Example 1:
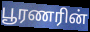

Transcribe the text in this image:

பூரணரின்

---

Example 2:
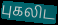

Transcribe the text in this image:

புகலிட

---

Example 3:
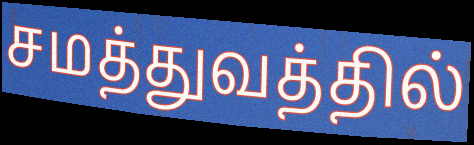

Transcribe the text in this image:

சமத்துவத்தில்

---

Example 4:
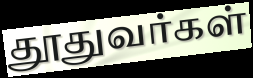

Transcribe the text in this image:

தூதுவர்கள்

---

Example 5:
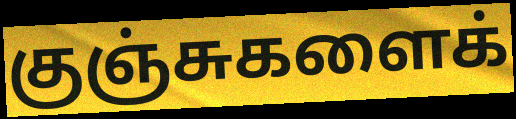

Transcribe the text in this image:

குஞ்சுகளைக்